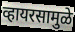
व्हायरसामुळे